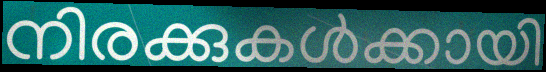
നിരക്കുകൾക്കായി